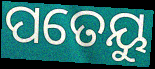
ପତେୟୁ